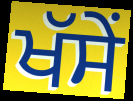
ਖੱਸੇਂ